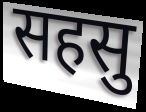
सहसु